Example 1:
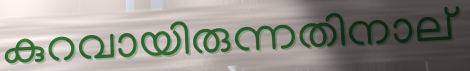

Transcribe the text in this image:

കുറവായിരുന്നതിനാല്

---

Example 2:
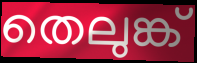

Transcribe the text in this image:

തെലുങ്ക്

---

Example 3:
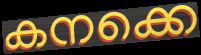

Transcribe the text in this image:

കനക്കെ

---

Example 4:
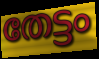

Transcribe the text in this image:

തേട്ടം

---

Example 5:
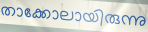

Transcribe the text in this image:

താക്കോലായിരുന്നു